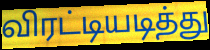
விரட்டியடித்து